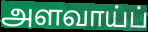
அளவாய்ப்